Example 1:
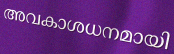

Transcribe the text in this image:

അവകാശധനമായി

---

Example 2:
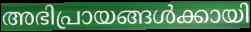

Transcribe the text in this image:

അഭിപ്രായങ്ങൾക്കായി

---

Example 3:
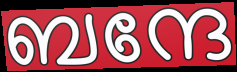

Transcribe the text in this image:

ബന്ദേ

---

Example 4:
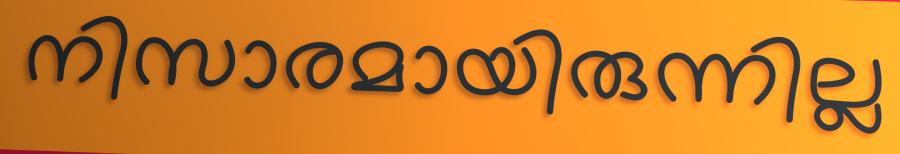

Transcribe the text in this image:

നിസാരമായിരുന്നില്ല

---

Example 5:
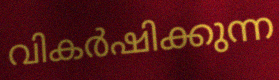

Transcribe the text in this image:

വികർഷിക്കുന്ന